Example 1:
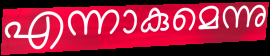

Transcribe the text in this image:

എന്നാകുമെന്നു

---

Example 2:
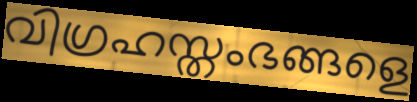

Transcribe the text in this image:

വിഗ്രഹസ്തംഭങ്ങളെ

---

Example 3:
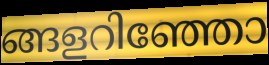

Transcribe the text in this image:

ങ്ങളറിഞ്ഞോ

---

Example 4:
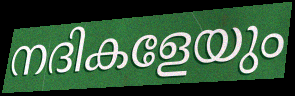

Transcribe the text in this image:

നദികളേയും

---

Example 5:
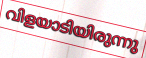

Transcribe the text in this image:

വിളയാടിയിരുന്നു